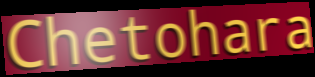
Chetohara